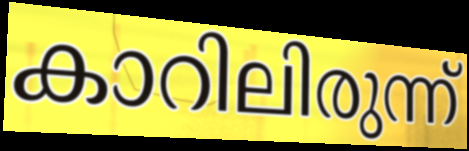
കാറിലിരുന്ന്